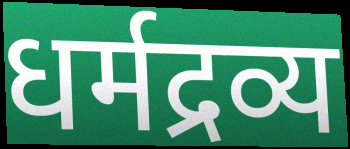
धर्मद्रव्य